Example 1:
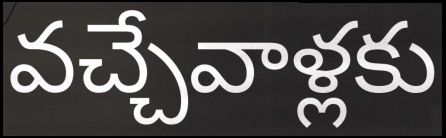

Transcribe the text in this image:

వచ్చేవాళ్లకు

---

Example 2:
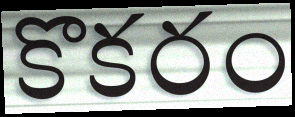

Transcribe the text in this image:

కొకరం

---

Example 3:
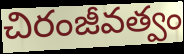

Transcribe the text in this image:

చిరంజీవత్వం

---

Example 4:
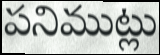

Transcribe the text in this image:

పనిముట్లు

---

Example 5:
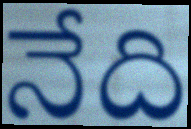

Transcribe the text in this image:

నేది